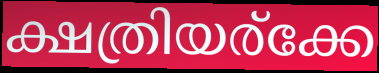
ക്ഷത്രിയര്ക്കേ